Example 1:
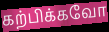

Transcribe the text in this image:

கற்பிக்கவோ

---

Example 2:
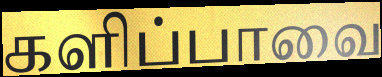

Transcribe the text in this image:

களிப்பாவை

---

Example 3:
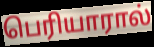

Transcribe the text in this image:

பெரியாரால்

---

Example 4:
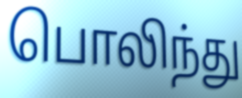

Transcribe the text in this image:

பொலிந்து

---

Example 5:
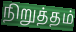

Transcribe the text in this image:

நிறுத்தம்